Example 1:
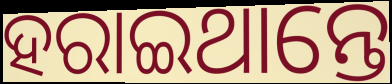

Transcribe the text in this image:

ହରାଇଥାନ୍ତେ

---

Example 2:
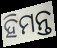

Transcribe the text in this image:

ହିମନ୍ତ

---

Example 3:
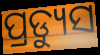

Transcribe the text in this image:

ପ୍ରଡ୍ୟୁସ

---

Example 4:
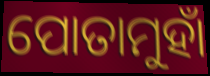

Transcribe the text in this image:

ପୋତାମୁହାଁ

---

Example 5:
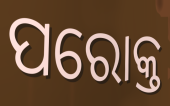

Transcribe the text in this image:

ପରୋକ୍ତ